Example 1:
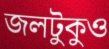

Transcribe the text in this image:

জলটুকুও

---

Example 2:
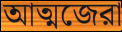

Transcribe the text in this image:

আত্মজেরা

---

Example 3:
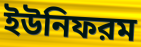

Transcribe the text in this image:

ইউনিফরম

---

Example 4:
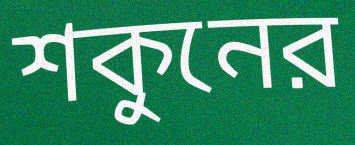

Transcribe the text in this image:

শকুনের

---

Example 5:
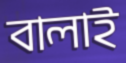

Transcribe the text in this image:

বালাই